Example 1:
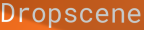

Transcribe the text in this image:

Dropscene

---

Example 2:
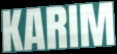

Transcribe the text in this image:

KARIM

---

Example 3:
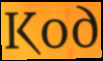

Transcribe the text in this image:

Kod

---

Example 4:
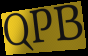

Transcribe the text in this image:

QPB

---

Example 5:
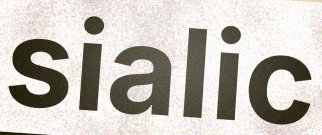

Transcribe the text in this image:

sialic